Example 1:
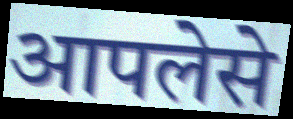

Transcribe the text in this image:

आपलेसे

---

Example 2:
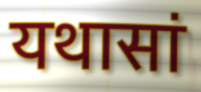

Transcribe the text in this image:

यथासां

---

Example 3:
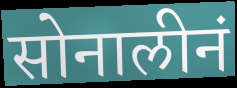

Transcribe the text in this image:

सोनालीनं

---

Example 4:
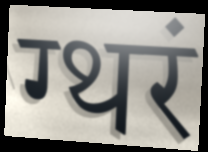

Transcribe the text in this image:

ग्थरं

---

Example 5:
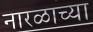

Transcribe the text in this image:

नारळाच्या